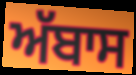
ਅੱਬਾਸ